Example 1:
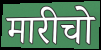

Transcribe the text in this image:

मारीचो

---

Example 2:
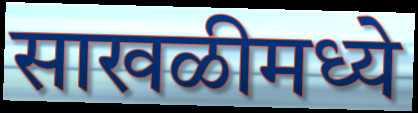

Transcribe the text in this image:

साखळीमध्ये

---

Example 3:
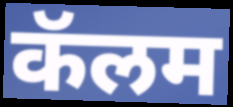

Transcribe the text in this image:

कॅलम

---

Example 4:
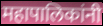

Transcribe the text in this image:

महापालिकांनी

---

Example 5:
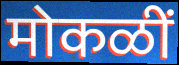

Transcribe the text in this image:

मोकळीं